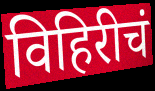
विहिरीचं